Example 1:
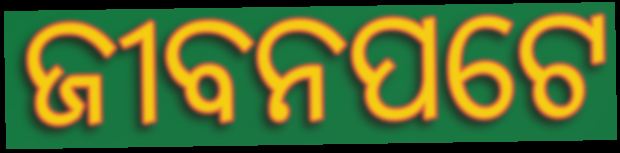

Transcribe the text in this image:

ଜୀବନପଟେ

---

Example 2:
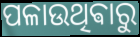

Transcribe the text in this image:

ପଳାଉଥିଵାରୁ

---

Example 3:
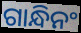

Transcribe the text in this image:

ଗାନ୍ଧିନଂ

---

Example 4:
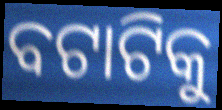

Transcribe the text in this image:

ବଟାଟିକୁ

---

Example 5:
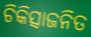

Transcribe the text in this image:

ଚିକିତ୍ସାଜନିତ